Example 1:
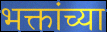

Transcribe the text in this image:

भक्तांच्या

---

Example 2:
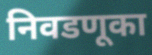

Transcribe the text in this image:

निवडणूका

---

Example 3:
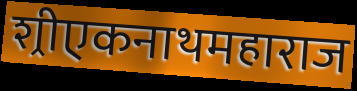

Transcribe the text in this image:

श्रीएकनाथमहाराज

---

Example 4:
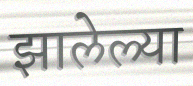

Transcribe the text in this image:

झालेल्या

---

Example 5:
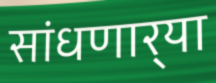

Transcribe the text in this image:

सांधणार्‍या